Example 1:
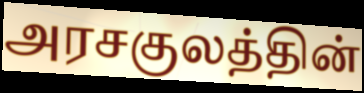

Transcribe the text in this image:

அரசகுலத்தின்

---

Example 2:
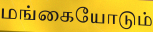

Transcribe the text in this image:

மங்கையோடும்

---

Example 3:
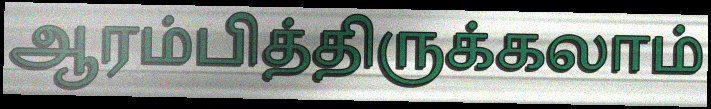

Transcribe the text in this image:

ஆரம்பித்திருக்கலாம்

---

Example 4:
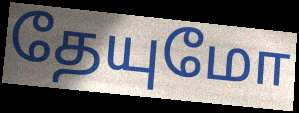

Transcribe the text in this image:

தேயுமோ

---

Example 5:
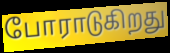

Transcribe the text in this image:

போராடுகிறது